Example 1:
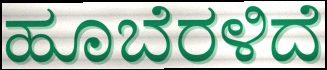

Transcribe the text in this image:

ಹೂಬೆರಳಿದೆ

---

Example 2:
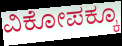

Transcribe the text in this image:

ವಿಕೋಪಕ್ಕೂ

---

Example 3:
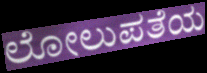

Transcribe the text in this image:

ಲೋಲುಪತೆಯ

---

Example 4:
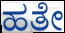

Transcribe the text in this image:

ಹತೇ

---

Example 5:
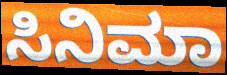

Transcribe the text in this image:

ಸಿನಿಮಾ